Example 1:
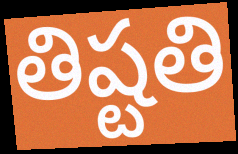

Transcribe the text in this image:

తిష్టతి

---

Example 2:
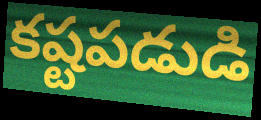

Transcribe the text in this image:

కష్టపడుడి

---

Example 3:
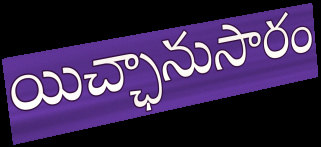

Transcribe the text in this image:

యిచ్ఛానుసారం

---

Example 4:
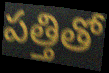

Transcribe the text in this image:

పత్తితో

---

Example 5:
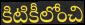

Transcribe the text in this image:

కిటికీలోంచి